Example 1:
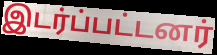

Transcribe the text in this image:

இடர்ப்பட்டனர்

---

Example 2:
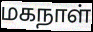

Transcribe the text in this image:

மகநாள்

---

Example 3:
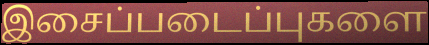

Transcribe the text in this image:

இசைப்படைப்புகளை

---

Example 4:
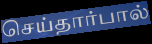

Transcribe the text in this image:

செய்தார்பால்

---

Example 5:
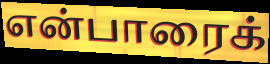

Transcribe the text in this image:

என்பாரைக்